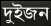
দুইজন